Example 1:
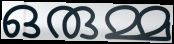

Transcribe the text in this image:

ഒരുമ്മ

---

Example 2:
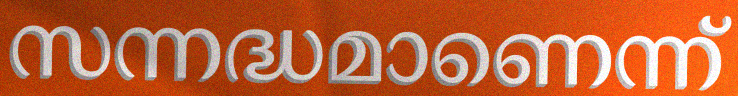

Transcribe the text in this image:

സന്നദ്ധമാണെന്ന്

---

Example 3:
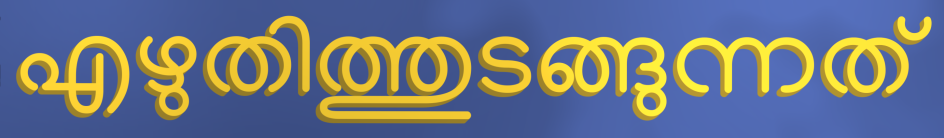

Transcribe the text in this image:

എഴുതിത്തുടങ്ങുന്നത്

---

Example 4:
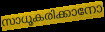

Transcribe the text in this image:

സാധൂകരിക്കാനോ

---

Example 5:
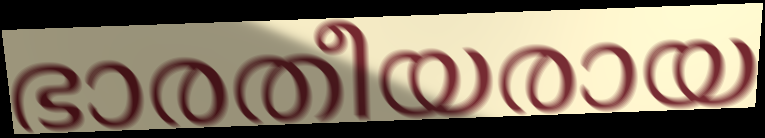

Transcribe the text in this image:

ഭാരതീയരായ